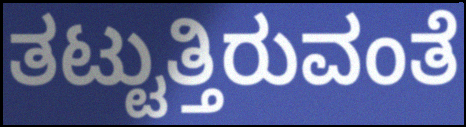
ತಟ್ಟುತ್ತಿರುವಂತೆ